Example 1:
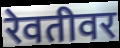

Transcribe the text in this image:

रेवतीवर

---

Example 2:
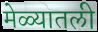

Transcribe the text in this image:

मेळ्यातली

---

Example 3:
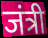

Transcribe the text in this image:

जंत्री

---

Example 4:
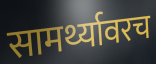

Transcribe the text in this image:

सामर्थ्यावरच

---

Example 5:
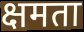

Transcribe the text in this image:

क्षमता